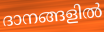
ദാനങ്ങളിൽ